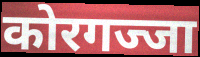
कोरगज्जा